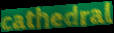
cathedral